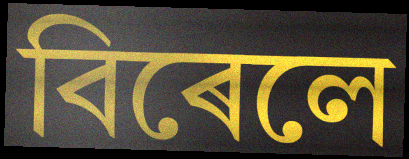
বিৰেলে